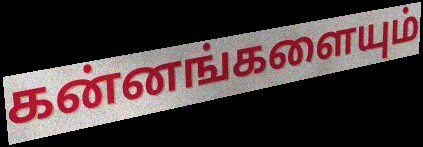
கன்னங்களையும்